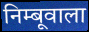
निम्बूवाला